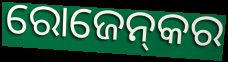
ରୋଜେନ୍‌କର